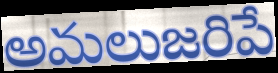
అమలుజరిపే